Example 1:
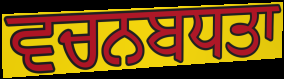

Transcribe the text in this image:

ਵਚਨਬਧਤਾ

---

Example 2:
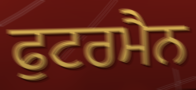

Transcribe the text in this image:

ਫੁਟਰਮੈਨ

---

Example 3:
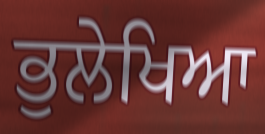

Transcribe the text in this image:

ਭੁਲੇਖਿਆ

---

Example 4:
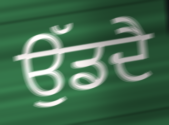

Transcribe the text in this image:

ਉੱਡਦੈ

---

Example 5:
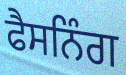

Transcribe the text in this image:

ਫੈਸਨਿੰਗ